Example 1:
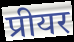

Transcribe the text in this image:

प्रीयर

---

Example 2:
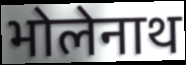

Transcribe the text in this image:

भोलेनाथ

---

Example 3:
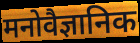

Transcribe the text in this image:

मनोवैज्ञानिक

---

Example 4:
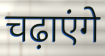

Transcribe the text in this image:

चढ़ाएंगे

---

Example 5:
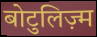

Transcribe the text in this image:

बोटुलिज़्म